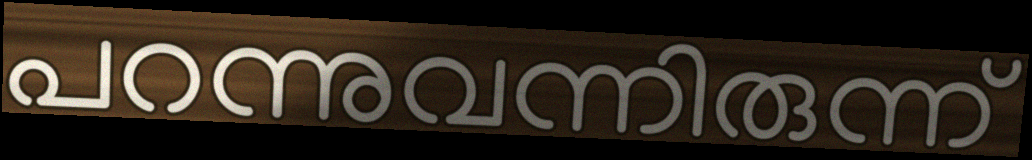
പറന്നുവന്നിരുന്ന്